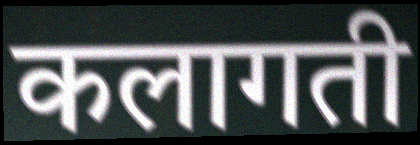
कलागती